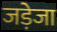
जड़ेजा